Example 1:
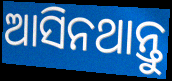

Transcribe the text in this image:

ଆସିନଥାନ୍ତୁ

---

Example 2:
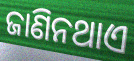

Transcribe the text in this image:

ଜାଣିନଥାଏ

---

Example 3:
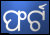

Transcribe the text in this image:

ଫର୍ଟ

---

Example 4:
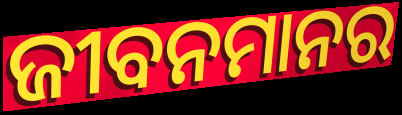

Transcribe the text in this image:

ଜୀବନମାନର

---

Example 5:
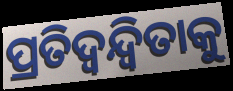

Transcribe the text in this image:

ପ୍ରତିଦ୍ୱନ୍ଦ୍ୱିତାକୁ